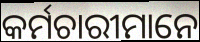
କର୍ମଚାରୀମାନେ